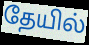
தேயில்